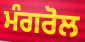
ਮੰਗਰੋਲ